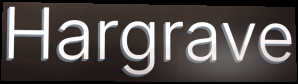
Hargrave